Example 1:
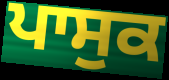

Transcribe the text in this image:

ਪਾਸੁਕ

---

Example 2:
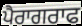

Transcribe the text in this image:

ਪੈਰਾਗਰਾਫ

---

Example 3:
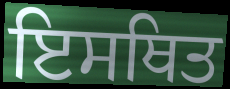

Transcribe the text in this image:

ਇਸਥਿਤ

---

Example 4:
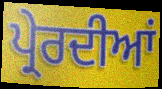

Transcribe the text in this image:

ਪ੍ਰੇਰਦੀਆਂ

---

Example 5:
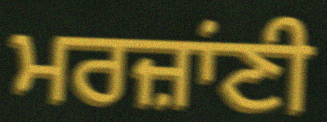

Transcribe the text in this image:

ਮਰਜ਼ਾਂਣੀ